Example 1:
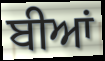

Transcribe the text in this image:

ਬੀਆਂ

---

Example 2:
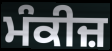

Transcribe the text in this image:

ਮੰਕੀਜ਼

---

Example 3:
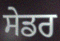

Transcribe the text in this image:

ਸੇਡਰ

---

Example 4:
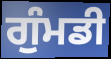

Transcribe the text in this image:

ਗੁੰਮਡੀ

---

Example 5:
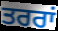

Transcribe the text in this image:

ਤਰਰਾਂ